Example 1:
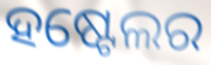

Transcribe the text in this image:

ହଷ୍ଟେଲର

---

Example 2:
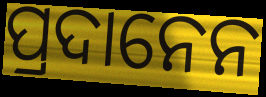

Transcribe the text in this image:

ପ୍ରଦାନେନ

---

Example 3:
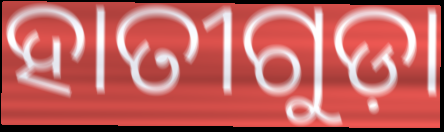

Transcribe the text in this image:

ହାତୀଗୁଡ଼ା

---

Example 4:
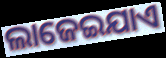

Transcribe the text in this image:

ଲାଜେଇଯାଏ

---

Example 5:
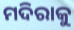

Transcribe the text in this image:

ମଦିରାକୁ